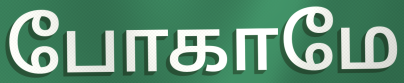
போகாமே